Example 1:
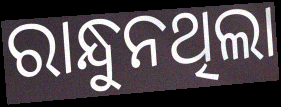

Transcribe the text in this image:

ରାନ୍ଧୁନଥିଲା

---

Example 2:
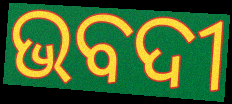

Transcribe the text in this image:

ଭବଦୀ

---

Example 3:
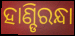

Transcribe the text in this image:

ହାଣ୍ଡିରନ୍ଧା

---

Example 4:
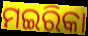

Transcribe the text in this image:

ମଇରିକା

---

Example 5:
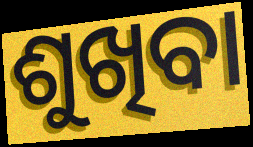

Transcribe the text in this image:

ଶୁଖିବା